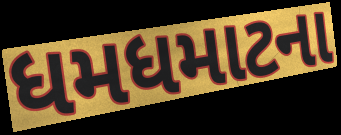
ધમધમાટના